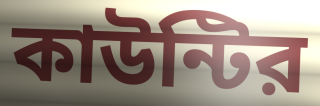
কাউন্টির